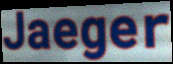
Jaeger